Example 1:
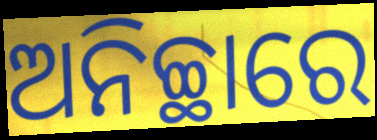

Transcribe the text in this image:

ଅନିଚ୍ଛାରେ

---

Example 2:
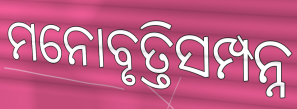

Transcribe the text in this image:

ମନୋବୃତ୍ତିସମ୍ପନ୍ନ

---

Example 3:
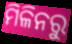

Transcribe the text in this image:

ମିଳିନରୁ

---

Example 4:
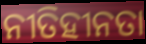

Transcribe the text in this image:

ନୀତିହୀନତା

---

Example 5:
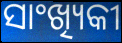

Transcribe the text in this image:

ସାଂଖ୍ୟିକୀ